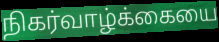
நிகர்வாழ்க்கையை